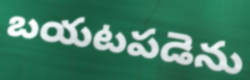
బయటపడెను